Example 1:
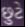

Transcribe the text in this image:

છુટે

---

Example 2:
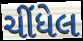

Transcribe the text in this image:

ચીંધેલ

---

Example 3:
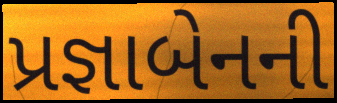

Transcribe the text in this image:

પ્રજ્ઞાબેનની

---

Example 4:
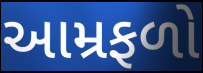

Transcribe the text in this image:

આમ્રફળો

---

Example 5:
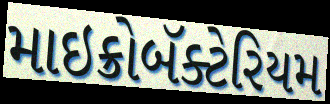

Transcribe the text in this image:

માઇક્રોબૅક્ટેરિયમ